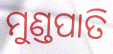
ମୁଣ୍ଡପାତି